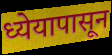
ध्येयापासून